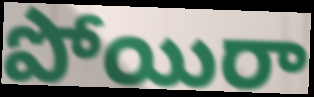
పోయిరా